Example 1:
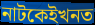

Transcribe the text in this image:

নাটকেইখনত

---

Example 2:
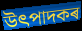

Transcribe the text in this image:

উৎপাদকৰ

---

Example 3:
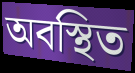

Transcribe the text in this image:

অবস্থিত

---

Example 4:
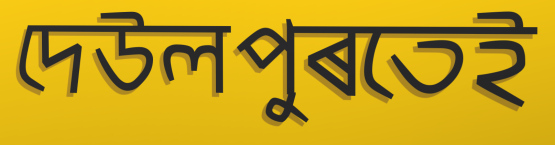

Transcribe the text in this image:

দেউলপুৰতেই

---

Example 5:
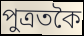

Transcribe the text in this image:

পুত্ৰতকৈ